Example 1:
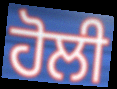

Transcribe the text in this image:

ਹੋਲੀ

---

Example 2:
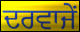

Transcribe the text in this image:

ਦਰਵਾਜੇਂ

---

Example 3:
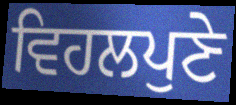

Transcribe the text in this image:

ਵਿਹਲਪੁਣੇ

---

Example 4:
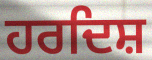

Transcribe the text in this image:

ਹਰਦਿਸ਼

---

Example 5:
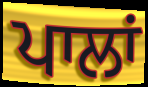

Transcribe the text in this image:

ਪਾਲਾਂ